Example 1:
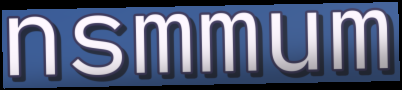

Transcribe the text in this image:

nsmmum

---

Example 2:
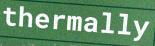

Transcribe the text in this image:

thermally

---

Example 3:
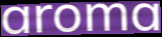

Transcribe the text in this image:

aroma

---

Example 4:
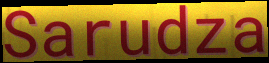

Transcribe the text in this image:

Sarudza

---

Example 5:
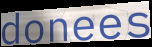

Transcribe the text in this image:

donees